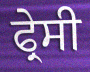
ਫ੍ਰੇਸੀ